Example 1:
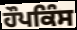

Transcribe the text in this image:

ਹੌਪਕਿੰਸ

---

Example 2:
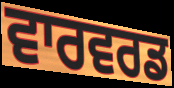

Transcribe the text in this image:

ਵਾਰਵਰਡ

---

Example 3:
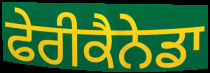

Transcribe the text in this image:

ਫੇਰੀਕੈਨੇਡਾ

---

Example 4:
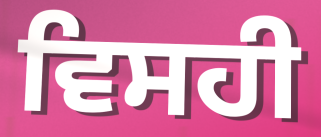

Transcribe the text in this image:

ਵਿਸਹੀ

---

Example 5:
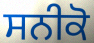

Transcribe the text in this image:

ਸਨੀਕੋ